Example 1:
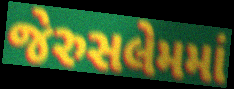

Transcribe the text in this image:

જેરુસલેમમાં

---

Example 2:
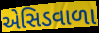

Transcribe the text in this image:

એસિડવાળા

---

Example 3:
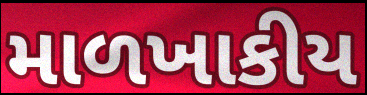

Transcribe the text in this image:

માળખાકીય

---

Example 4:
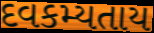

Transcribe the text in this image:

દવકમ્યતાય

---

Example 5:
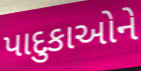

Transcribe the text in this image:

પાદુકાઓને